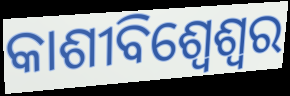
କାଶୀବିଶ୍ୱେଶ୍ୱର